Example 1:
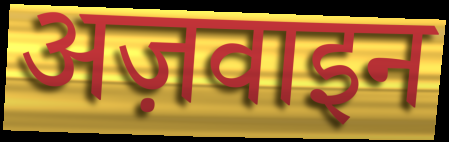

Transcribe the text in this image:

अज़वाइन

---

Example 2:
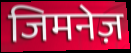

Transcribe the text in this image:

जिमनेज़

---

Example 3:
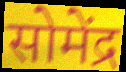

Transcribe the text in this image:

सोमेंद्र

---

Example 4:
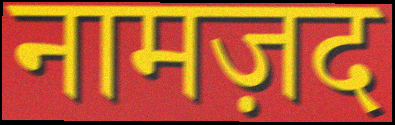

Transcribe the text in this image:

नामज़द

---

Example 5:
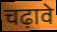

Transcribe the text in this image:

चढ़ावे